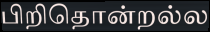
பிறிதொன்றல்ல